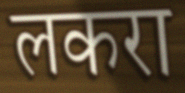
लकरा